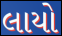
લાયો